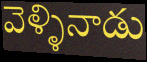
వెళ్ళినాడు